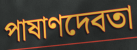
পাষাণদেবতা